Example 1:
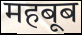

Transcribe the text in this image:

महबूब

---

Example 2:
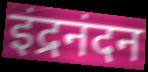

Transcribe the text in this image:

इंद्रनंदन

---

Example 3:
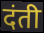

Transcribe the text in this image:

दंती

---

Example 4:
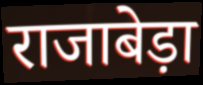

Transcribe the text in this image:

राजाबेड़ा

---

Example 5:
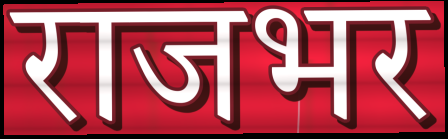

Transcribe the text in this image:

राजभर